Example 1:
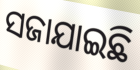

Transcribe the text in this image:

ସଜାଯାଇଛି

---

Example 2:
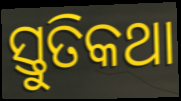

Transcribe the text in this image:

ସ୍ତୁତିକଥା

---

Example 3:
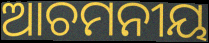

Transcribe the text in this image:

ଆଚମନୀୟ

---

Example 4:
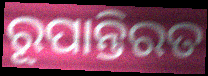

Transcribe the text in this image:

ରୂପାନ୍ତିରତ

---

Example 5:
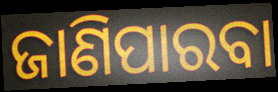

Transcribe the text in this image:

ଜାଣିପାରବା